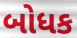
બોધક